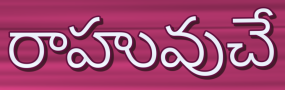
రాహువుచే